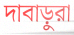
দাবাড়ুরা